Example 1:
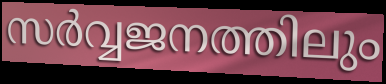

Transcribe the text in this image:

സർവ്വജനത്തിലും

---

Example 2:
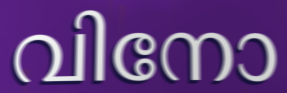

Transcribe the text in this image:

വിനോ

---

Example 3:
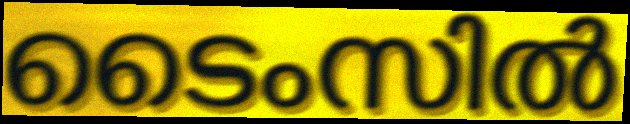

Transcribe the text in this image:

ടൈംസിൽ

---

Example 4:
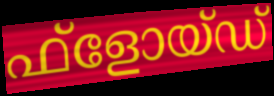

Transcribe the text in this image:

ഫ്ളോയ്ഡ്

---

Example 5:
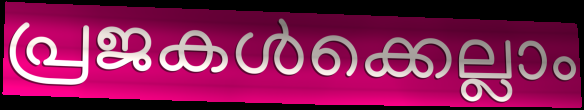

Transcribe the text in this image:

പ്രജകൾക്കെല്ലാം